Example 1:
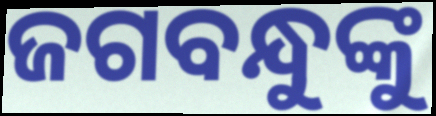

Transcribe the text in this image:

ଜଗବନ୍ଧୁଙ୍କୁ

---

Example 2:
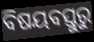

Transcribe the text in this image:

ବିଷୟବସ୍ତୁରୁ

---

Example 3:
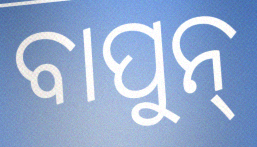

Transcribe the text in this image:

ବାପୁନ୍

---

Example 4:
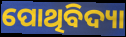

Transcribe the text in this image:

ପୋଥିବିଦ୍ୟା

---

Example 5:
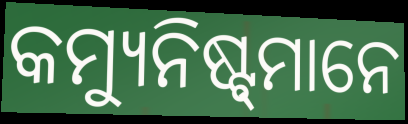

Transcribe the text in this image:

କମ୍ୟୁନିଷ୍ଟ୍‌ମାନେ